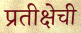
प्रतीक्षेची